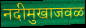
नदीमुखाजवळ